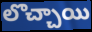
లొచ్చాయి